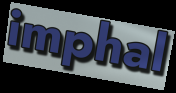
imphal